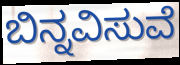
ಬಿನ್ನವಿಸುವೆ